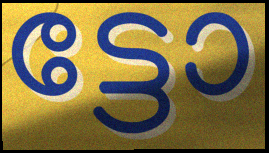
ട്ടോ